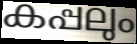
കപ്പലും